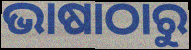
ଭାଷାଠାରୁ